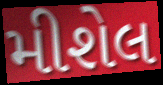
મીશેલ